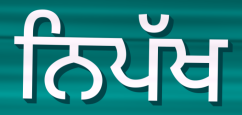
ਨਿਪੱਖ